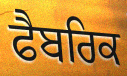
ਫੈਬਰਿਕ